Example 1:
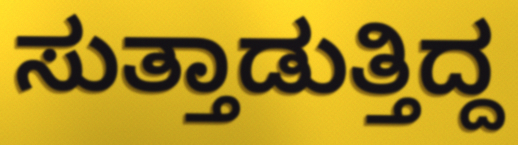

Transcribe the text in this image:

ಸುತ್ತಾಡುತ್ತಿದ್ದ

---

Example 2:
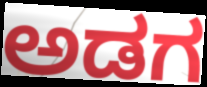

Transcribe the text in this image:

ಅಡಗ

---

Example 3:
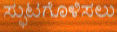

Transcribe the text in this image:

ಸ್ಫುಟಗೊಳಿಸಲು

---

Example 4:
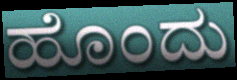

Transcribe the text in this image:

ಹೊಂದು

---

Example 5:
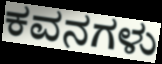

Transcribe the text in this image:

ಕವನಗಳು